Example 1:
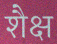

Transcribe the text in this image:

शैक्ष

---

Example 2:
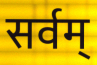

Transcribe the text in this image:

सर्वम्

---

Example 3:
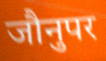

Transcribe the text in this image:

जौनुपर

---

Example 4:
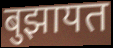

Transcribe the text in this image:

बुझायत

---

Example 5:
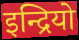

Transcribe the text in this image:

इन्द्रियो